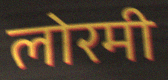
लोरमी